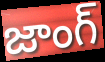
జాంగ్